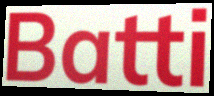
Batti